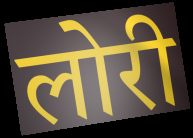
लोरी